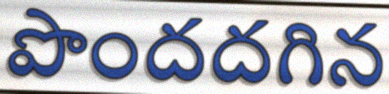
పొందదగిన